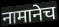
नामानेच